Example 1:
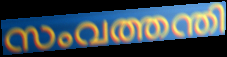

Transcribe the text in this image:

സംവത്തന്തി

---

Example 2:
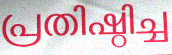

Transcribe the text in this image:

പ്രതിഷ്ഠിച്ച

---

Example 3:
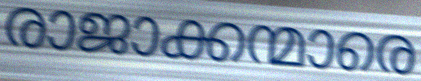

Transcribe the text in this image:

രാജാക്കന്മാരെ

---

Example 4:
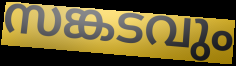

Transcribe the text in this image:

സങ്കടവും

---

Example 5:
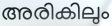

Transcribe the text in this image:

അരികിലും